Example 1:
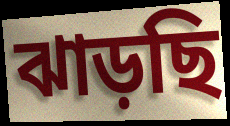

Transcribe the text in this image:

ঝাড়ছি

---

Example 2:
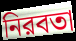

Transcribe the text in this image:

নিরবতা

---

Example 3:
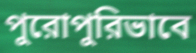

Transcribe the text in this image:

পুরোপুরিভাবে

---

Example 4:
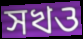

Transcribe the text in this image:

সখও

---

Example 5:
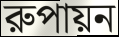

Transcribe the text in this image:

রুপায়ন